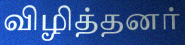
விழித்தனர்